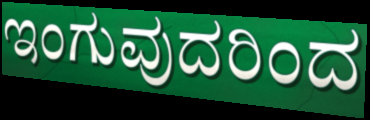
ಇಂಗುವುದರಿಂದ